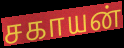
சகாயன்